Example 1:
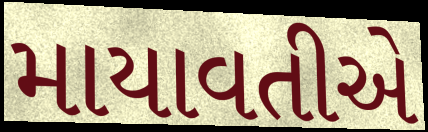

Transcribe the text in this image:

માયાવતીએ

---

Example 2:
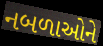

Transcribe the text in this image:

નબળાઓને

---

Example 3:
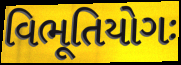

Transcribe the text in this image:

વિભૂતિયોગઃ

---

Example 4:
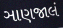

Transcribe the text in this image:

ઞાણજાલં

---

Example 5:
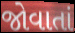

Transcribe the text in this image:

જોવાતાં